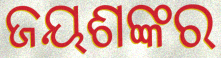
ଜୟଶଙ୍କର